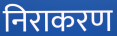
निराकरण